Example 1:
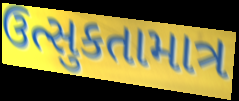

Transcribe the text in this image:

ઉત્સુકતામાત્ર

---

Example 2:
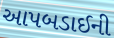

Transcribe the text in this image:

આપબડાઈની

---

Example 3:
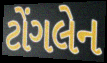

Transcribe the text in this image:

ટોંગલેન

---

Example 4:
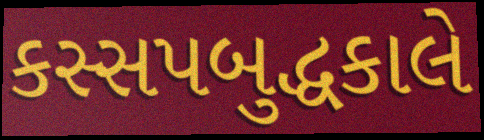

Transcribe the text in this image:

કસ્સપબુદ્ધકાલે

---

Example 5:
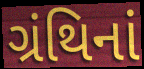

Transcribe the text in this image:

ગ્રંથિનાં